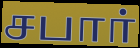
சபார்